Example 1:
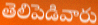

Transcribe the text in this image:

తెలిపెడివారు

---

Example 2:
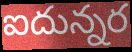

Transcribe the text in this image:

ఐదున్నర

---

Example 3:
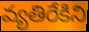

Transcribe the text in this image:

వ్యతిరేకిని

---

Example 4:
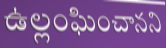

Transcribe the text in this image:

ఉల్లంఘించానని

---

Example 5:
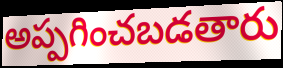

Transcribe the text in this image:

అప్పగించబడతారు